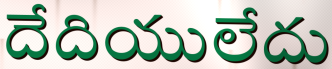
దేదియులేదు